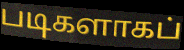
படிகளாகப்